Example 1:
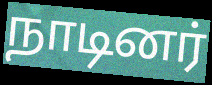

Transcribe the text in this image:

நாடினர்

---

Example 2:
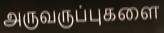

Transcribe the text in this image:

அருவருப்புகளை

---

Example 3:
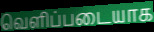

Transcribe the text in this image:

வெளிப்படையாக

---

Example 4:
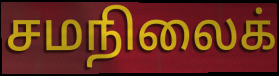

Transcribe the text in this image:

சமநிலைக்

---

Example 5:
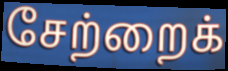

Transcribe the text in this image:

சேற்றைக்